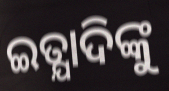
ଇତ୍ଯାଦିଙ୍କୁ